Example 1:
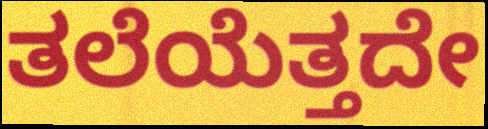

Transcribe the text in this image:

ತಲೆಯೆತ್ತದೇ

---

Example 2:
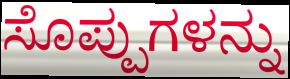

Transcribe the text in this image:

ಸೊಪ್ಪುಗಳನ್ನು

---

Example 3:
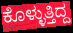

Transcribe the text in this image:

ಕೊಳ್ಳುತ್ತಿದ್ದ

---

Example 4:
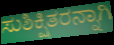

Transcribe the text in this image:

ಸುಶಿಕ್ಷಿತರನ್ನಾಗಿ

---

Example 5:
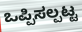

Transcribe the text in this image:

ಒಪ್ಪಿಸಲ್ಪಟ್ಟ